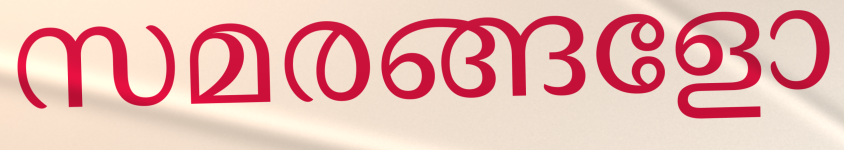
സമരങ്ങളോ